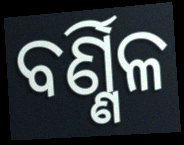
ବର୍ଣ୍ଣିଳ